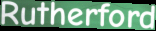
Rutherford